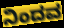
ನಿಂದವ